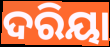
ଦରିୟା